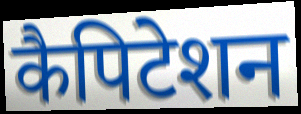
कैपिटेशन